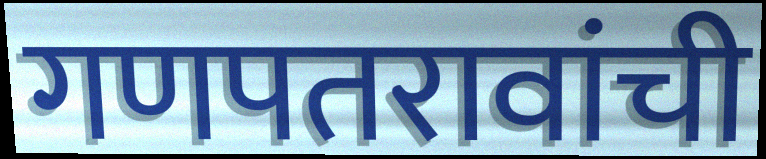
गणपतरावांची